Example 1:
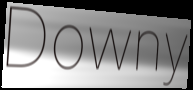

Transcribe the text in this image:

Downy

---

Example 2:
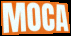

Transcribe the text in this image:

MOCA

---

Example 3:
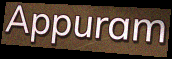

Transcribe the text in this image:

Appuram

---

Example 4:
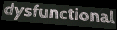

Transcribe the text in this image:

dysfunctional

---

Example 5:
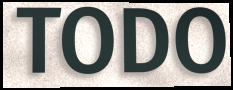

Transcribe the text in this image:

TODO